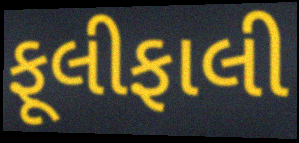
ફૂલીફાલી